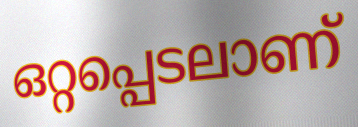
ഒറ്റപ്പെടലാണ്